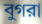
বুগরা